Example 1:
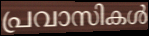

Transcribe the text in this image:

പ്രവാസികൾ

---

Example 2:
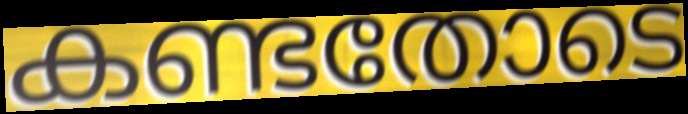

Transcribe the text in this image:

കണ്ടതോടെ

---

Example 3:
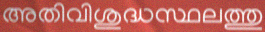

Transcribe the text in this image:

അതിവിശുദ്ധസ്ഥലത്തു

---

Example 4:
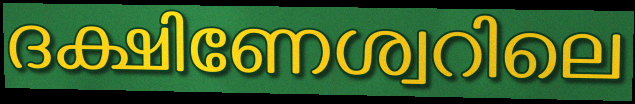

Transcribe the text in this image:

ദക്ഷിണേശ്വറിലെ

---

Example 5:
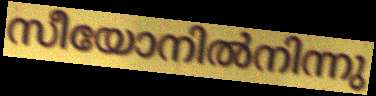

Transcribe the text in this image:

സീയോനിൽനിന്നു